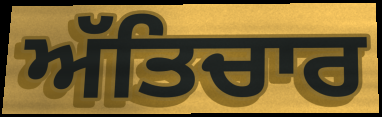
ਅੱਤਿਚਾਰ